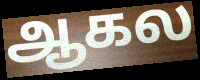
ஆகல